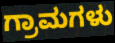
ಗ್ರಾಮಗಳು